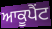
ਆਕੂਪੈਂਟ